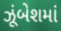
ઝૂંબેશમાં